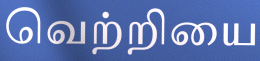
வெற்றியை